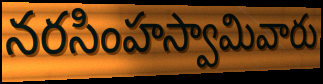
నరసింహస్వామివారు